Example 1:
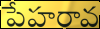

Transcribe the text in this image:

పేహరావ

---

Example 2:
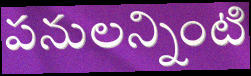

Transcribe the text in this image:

పనులన్నింటి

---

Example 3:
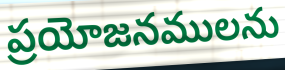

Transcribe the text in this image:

ప్రయోజనములను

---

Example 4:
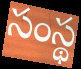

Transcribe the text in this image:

సంస్థ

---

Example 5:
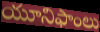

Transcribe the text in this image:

యూనిఫాంలు